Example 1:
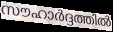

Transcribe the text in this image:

സൗഹാർദ്ദത്തിൽ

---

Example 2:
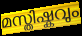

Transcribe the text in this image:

മസ്തിഷ്കവും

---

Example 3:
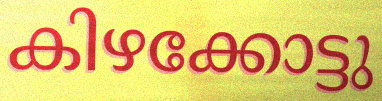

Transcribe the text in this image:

കിഴക്കോട്ടു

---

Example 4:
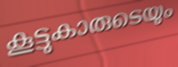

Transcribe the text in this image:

കൂട്ടുകാരുടെയും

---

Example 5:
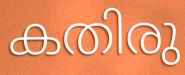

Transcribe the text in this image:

കതിരു